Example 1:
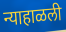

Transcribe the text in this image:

न्याहाळली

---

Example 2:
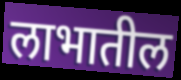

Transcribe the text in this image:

लाभातील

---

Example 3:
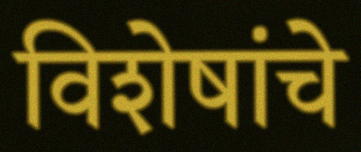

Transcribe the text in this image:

विशेषांचे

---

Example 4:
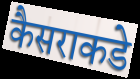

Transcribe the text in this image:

कैसराकडे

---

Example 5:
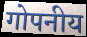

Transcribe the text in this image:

गोपनीय